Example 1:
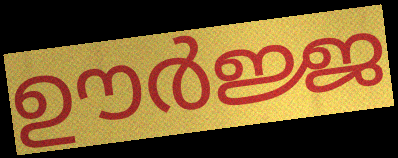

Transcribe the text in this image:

ഊർജ്ജ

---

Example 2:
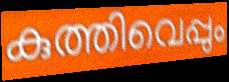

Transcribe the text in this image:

കുത്തിവെപ്പും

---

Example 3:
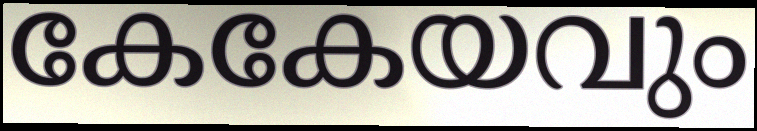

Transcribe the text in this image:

കേകേയവും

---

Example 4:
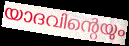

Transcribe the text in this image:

യാദവിന്റെയും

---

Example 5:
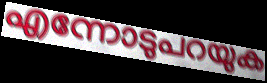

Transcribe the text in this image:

എന്നോടുപറയുക